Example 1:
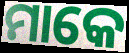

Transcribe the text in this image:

ମାକେ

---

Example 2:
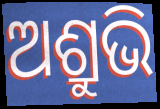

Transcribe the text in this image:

ଅଶ୍ରୁଭି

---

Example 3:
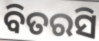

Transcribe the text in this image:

ବିତରସି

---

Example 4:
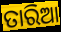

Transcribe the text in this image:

ତାରିଆ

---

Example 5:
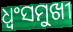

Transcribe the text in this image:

ଧ୍ୱଂସମୁଖୀ